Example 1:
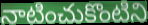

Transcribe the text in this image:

నాటించుకొంటిని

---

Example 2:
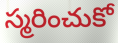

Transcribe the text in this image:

స్మరించుకో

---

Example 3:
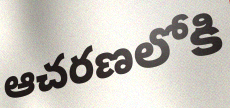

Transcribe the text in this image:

ఆచరణలోకి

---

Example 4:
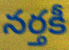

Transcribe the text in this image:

నర్తకీ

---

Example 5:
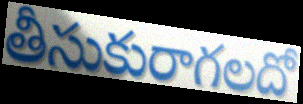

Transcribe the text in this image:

తీసుకురాగలదో